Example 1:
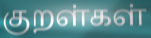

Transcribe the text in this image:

குறள்கள்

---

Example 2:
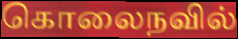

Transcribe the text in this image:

கொலைநவில்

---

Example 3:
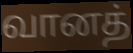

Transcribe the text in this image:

வானத்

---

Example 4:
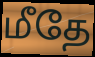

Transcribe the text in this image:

மீதே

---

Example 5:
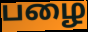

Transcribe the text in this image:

பழை